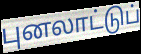
புனலாட்டுப்